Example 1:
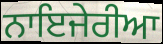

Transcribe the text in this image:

ਨਾਇਜੇਰੀਆ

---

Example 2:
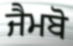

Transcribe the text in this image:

ਜੈਮਬੋ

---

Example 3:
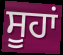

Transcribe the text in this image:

ਸੂਹਾਂ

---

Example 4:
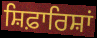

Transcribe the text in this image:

ਸ਼ਿਫ਼ਾਰਿਸ਼ਾਂ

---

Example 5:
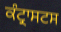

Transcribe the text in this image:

ਕੰਟ੍ਰਾਸਟਸ